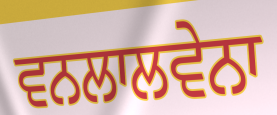
ਵਨਲਾਲਵੇਨਾ